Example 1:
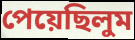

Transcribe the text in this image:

পেয়েছিলুম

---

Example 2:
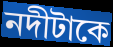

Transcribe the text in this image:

নদীটাকে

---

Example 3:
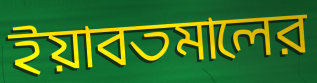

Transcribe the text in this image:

ইয়াবতমালের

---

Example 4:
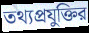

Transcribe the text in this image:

তথ্যপ্রযুক্তির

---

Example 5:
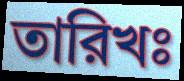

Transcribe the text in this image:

তারিখঃ